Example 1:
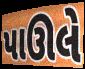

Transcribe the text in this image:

પાઊલે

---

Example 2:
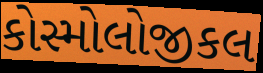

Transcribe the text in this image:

કોસ્મોલોજીકલ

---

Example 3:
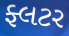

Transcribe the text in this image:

ફ્લટર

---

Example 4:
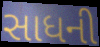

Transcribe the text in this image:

સાધની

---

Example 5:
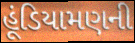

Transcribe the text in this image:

હૂંડિયામણની